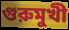
গুরুমুখী